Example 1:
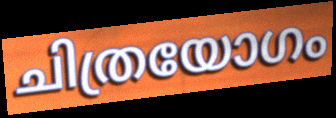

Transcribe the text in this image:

ചിത്രയോഗം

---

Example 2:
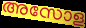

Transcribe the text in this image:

അസോള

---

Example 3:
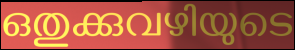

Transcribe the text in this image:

ഒതുക്കുവഴിയുടെ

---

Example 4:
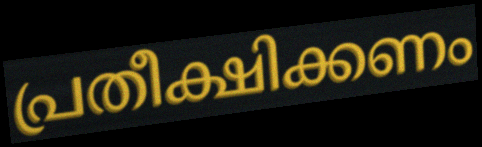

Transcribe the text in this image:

പ്രതീക്ഷിക്കണം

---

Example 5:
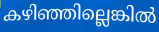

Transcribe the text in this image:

കഴിഞ്ഞില്ലെങ്കിൽ